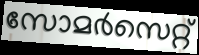
സോമർസെറ്റ്